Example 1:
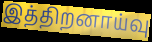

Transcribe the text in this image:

இத்திறனாய்வு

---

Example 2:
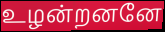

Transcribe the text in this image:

உழன்றனனே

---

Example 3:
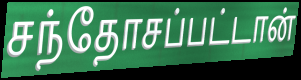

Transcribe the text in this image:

சந்தோசப்பட்டான்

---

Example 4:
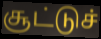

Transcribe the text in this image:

சூட்டுச்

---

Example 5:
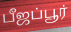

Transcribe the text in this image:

பீஜப்பூர்